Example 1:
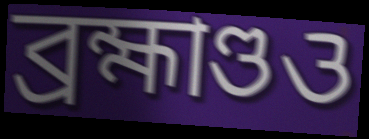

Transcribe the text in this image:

ব্রহ্মাণ্ডও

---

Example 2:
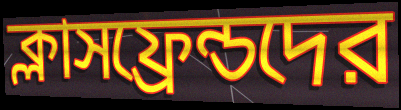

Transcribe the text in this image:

ক্লাসফ্রেন্ডদের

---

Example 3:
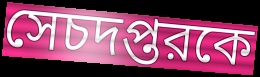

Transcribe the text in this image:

সেচদপ্তরকে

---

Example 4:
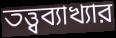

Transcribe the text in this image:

তত্ত্বব্যাখ্যার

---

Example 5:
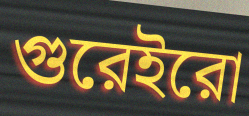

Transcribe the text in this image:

গুরেইরো